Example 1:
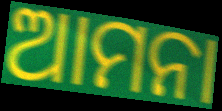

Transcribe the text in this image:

ଆମନା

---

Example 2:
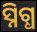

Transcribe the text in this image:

ସ୍ନିଗ୍ଧ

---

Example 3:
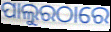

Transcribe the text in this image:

ପାଲୁରଠାରେ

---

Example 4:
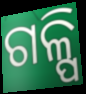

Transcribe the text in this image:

ଗଳ୍ପି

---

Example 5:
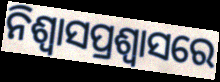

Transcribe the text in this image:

ନିଶ୍ୱାସପ୍ରଶ୍ୱାସରେ